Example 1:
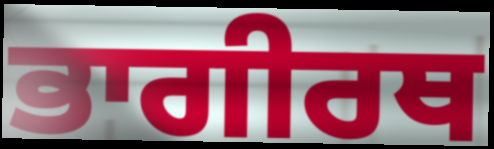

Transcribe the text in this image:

ਭਾਗੀਰਥ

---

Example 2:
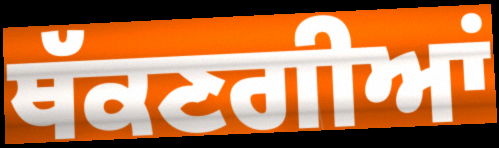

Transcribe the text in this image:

ਥੱਕਣਗੀਆਂ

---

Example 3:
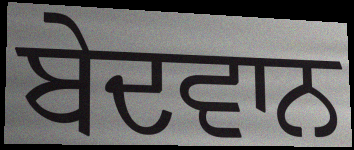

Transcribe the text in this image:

ਬੇਦਵਾਨ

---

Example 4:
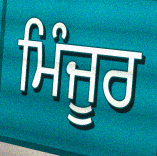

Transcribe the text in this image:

ਮਿੰਜੂਰ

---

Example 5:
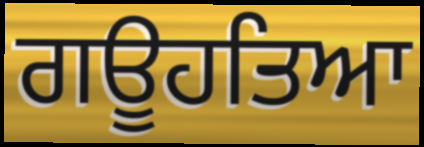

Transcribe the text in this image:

ਗਊਹਤਿਆ